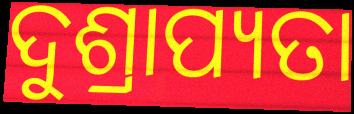
ଦୁଶ୍ରାପ୍ୟତା